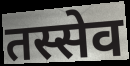
तस्सेव